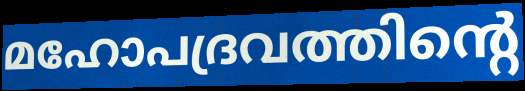
മഹോപദ്രവത്തിന്റെ